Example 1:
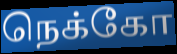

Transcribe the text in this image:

நெக்கோ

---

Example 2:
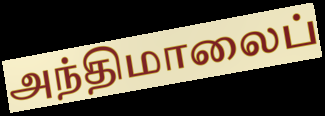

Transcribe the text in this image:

அந்திமாலைப்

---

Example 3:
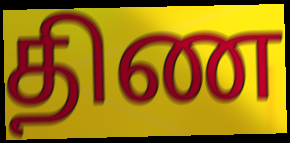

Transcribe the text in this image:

திண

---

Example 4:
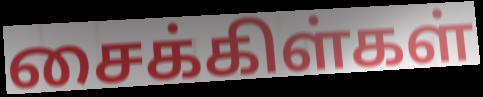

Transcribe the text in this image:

சைக்கிள்கள்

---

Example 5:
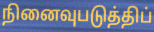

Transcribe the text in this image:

நினைவுபடுத்திப்